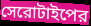
সেরোটাইপের